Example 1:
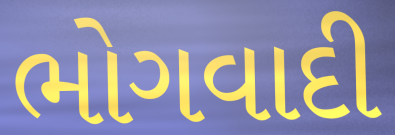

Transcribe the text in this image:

ભોગવાદી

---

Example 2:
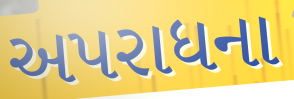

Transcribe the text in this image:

અપરાધના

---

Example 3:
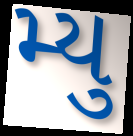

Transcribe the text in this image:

મ્યુ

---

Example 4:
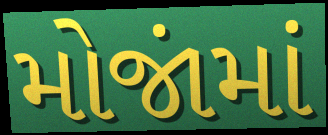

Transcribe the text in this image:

મોજાંમાં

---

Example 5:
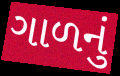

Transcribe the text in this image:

ગાળનું